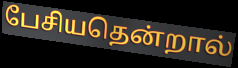
பேசியதென்றால்